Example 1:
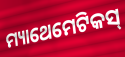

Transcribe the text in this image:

ମ୍ୟାଥେମେଟିକସ୍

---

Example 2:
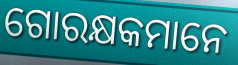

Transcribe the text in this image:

ଗୋରକ୍ଷକମାନେ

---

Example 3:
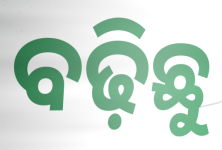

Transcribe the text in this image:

ବଢ଼ିଛୁ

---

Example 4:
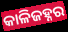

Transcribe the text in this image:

କାଳିଜହ୍ନର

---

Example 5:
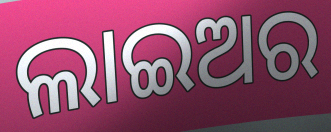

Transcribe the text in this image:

ଲାଇଅର